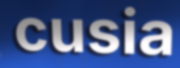
cusia